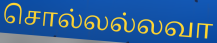
சொல்லல்லவா